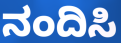
ನಂದಿಸಿ